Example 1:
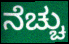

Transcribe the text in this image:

ನೆಚ್ಚು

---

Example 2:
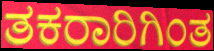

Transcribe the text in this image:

ತಕರಾರಿಗಿಂತ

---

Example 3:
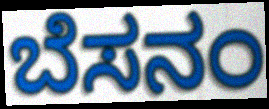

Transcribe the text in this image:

ಬೆಸನಂ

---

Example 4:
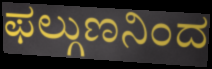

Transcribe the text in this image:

ಫಲ್ಗುಣನಿಂದ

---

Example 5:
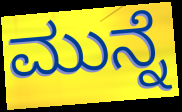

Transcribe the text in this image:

ಮುನ್ನೆ